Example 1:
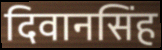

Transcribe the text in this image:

दिवानसिंह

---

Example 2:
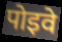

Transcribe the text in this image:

पोइवे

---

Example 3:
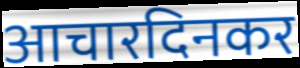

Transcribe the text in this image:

आचारदिनकर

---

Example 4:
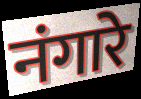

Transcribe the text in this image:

नंगारे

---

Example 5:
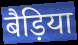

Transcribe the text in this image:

बैड़िया